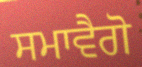
ਸਮਾਵੈਗੋ